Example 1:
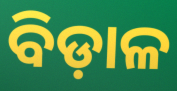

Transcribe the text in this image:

ବିଡ଼ାଳ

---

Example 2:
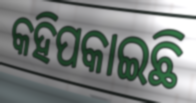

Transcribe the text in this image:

କହିପକାଇଛି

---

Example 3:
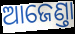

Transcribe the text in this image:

ଆଜେଣ୍ତା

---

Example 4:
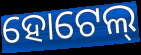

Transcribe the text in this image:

ହୋଟେଲ୍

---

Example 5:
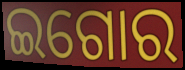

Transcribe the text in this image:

ଇଗୋର